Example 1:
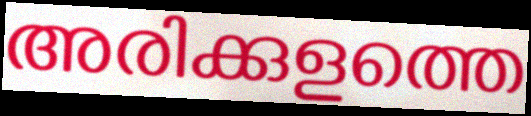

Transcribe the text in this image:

അരിക്കുളത്തെ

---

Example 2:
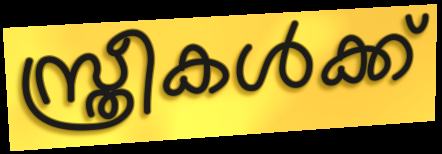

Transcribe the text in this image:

സ്ത്രീകൾക്ക്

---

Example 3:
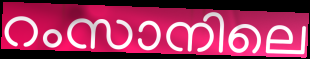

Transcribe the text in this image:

റംസാനിലെ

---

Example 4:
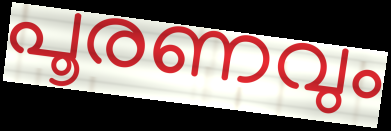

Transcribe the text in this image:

പൂരണവും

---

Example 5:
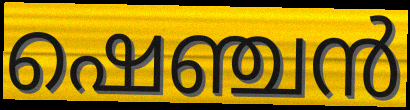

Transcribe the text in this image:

ഷെഞ്ചൻ